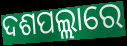
ଦଶପଲ୍ଲାରେ